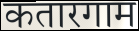
कतारगाम